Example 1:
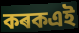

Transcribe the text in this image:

কৰকএই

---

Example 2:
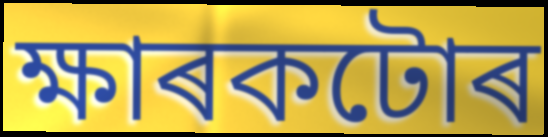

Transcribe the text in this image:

ক্ষাৰকটোৰ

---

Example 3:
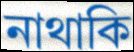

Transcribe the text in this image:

নাথাকি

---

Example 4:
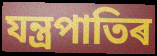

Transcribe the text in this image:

যন্ত্ৰপাতিৰ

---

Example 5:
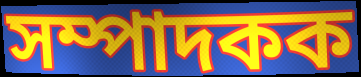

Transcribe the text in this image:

সম্পাদকক